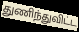
துணிந்துவிட்ட